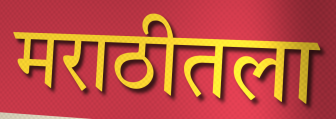
मराठीतला